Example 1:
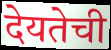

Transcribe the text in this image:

देयतेची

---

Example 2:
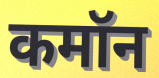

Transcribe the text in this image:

कमॉन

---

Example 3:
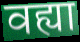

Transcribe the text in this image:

वह्या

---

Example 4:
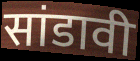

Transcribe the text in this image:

सांडावी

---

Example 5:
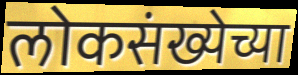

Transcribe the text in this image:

लोकसंख्येच्या